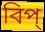
বিপ্